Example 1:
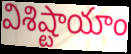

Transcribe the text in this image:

విశిష్టాయాం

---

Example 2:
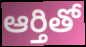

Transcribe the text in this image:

ఆర్తితో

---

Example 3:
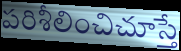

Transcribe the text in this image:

పరిశీలించిచూస్తే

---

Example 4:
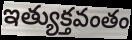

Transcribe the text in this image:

ఇత్యుక్తవంతం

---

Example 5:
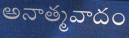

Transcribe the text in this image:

అనాత్మవాదం